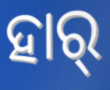
ହାର୍